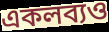
একলব্যও